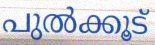
പുൽക്കൂട്